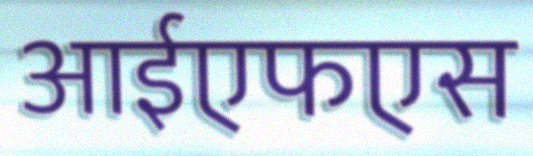
आईएफएस